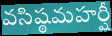
వసిష్ఠమహర్షీ